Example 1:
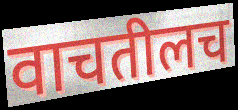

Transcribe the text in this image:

वाचतीलच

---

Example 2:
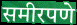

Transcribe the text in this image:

समीरपणे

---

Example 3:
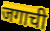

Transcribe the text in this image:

जगाची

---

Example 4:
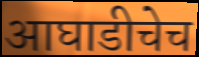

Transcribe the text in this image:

आघाडीचेच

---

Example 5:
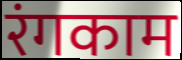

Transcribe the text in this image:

रंगकाम